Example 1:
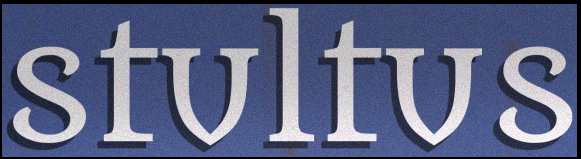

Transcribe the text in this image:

stultus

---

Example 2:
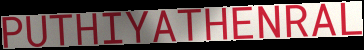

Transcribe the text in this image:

PUTHIYATHENRAL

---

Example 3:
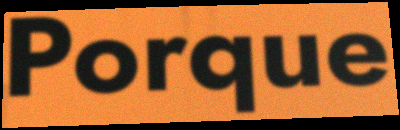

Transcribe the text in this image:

Porque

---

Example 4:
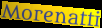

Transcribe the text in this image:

Morenatti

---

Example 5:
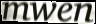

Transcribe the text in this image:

mwen